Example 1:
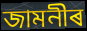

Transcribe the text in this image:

জামনীৰ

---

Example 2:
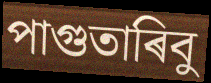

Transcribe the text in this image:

পাগুতাৰিবু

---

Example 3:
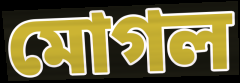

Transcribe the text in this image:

মোগল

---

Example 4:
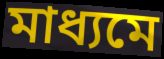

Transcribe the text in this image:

মাধ্যমে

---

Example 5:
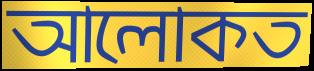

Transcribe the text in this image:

আলোকত